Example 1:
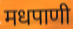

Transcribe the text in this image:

मधपाणी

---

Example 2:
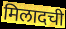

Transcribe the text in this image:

मिलादची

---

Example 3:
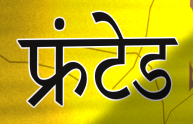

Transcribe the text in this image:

फ्रंटेड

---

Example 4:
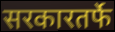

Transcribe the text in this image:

सरकारतर्फे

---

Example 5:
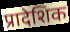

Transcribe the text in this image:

प्रादेशिक